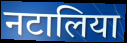
नटालिया